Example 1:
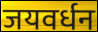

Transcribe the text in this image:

जयवर्धन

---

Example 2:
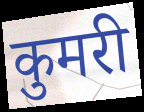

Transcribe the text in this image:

कुमरी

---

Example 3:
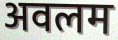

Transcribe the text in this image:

अवलम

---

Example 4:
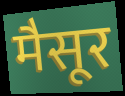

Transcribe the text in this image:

मैसूर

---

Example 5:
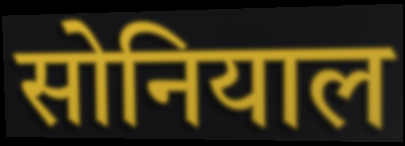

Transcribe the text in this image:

सोनियाल